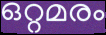
ഒറ്റമരം